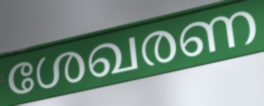
ശേഖരണ